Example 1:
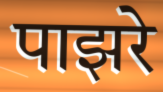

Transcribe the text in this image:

पाझरे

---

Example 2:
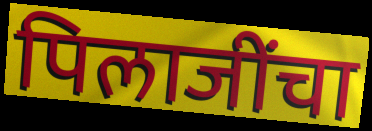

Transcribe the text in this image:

पिलाजींचा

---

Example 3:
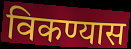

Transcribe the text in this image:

विकण्यास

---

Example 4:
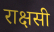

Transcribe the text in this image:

राक्षसी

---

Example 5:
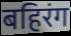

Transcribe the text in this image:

बहिरंग